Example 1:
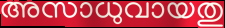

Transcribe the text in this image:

അസാധുവായതു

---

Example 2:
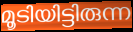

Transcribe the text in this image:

മൂടിയിട്ടിരുന്ന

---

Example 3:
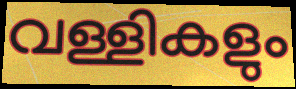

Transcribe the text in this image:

വള്ളികളും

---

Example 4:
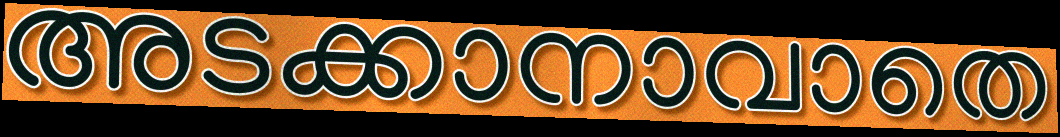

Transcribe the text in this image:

അടക്കാനാവാതെ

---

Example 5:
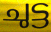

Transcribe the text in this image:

ചുട്ട